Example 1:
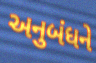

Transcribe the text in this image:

અનુબંધને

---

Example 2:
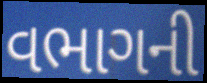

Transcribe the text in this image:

વભાગની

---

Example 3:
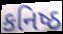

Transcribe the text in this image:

કનિષ્ઠ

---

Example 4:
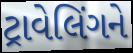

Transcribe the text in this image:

ટ્રાવેલિંગને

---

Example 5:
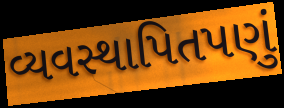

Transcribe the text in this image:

વ્યવસ્થાપિતપણું